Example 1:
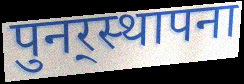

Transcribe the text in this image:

पुनर्स्थापना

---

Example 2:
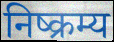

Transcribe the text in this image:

निष्क्रम्य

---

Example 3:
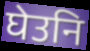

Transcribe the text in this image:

घेउनि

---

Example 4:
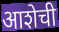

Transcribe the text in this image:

आशेची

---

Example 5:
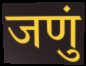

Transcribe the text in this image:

जणुं